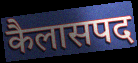
कैलासपद